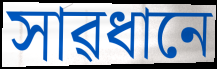
সাৱধানে